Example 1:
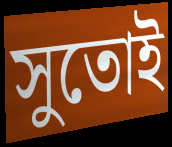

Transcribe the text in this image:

সুতোই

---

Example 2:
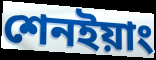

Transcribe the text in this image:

শেনইয়াং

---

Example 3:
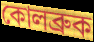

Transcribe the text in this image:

কোলব্রুক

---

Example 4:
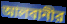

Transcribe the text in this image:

আলবানীর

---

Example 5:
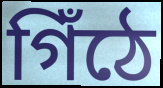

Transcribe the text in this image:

গিঁঠে